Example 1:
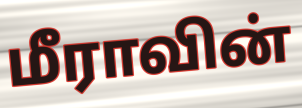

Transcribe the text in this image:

மீராவின்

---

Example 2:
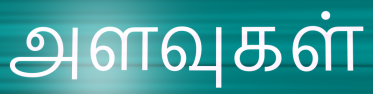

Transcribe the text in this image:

அளவுகள்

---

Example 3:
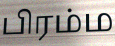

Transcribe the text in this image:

பிரம்ம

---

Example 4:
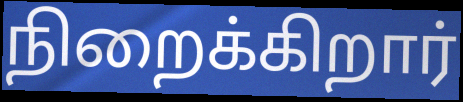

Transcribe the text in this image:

நிறைக்கிறார்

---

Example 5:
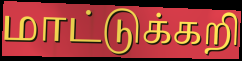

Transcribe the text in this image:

மாட்டுக்கறி